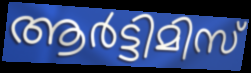
ആർട്ടിമിസ്